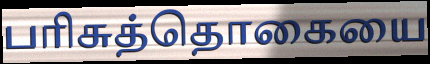
பரிசுத்தொகையை